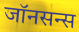
जॉनसन्स